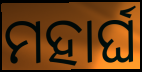
ମହାର୍ଘ